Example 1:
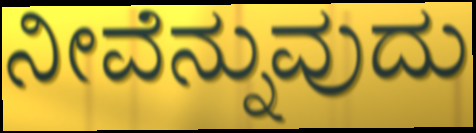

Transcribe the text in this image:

ನೀವೆನ್ನುವುದು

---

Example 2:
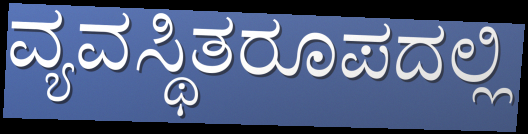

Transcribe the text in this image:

ವ್ಯವಸ್ಥಿತರೂಪದಲ್ಲಿ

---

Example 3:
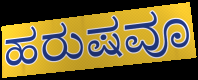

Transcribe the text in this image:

ಹರುಷವೂ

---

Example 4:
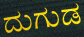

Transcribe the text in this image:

ದುಗುಡ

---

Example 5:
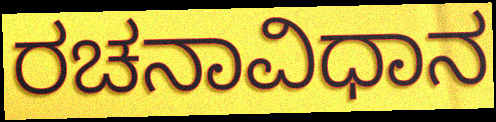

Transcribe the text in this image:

ರಚನಾವಿಧಾನ